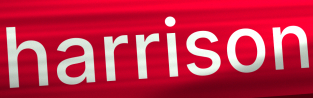
harrison